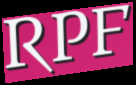
RPF